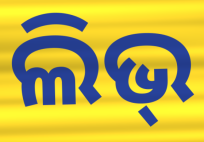
ଲିଭ୍